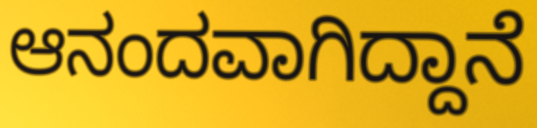
ಆನಂದವಾಗಿದ್ದಾನೆ